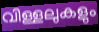
വിള്ളലുകളും